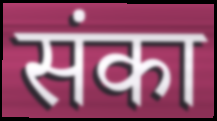
संका